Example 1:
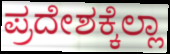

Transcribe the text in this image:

ಪ್ರದೇಶಕ್ಕೆಲ್ಲಾ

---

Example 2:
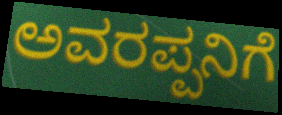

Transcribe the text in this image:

ಅವರಪ್ಪನಿಗೆ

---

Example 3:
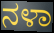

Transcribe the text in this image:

ನಳಾ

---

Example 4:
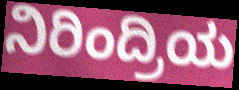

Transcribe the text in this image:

ನಿರಿಂದ್ರಿಯ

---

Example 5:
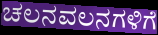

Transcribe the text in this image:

ಚಲನವಲನಗಳಿಗೆ